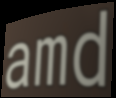
amd